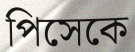
পিসেকে